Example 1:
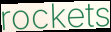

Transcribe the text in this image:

rockets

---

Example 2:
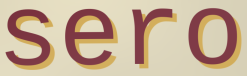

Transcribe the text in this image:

sero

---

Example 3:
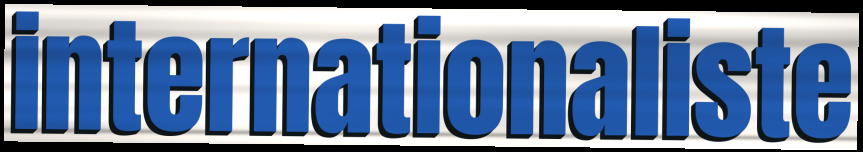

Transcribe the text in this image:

internationaliste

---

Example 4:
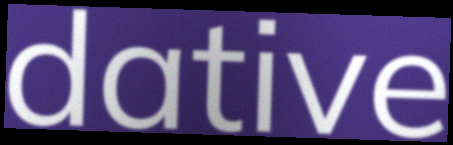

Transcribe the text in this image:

dative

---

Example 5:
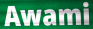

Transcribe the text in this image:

Awami